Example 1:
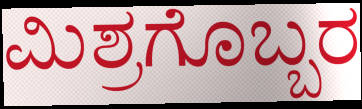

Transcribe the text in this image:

ಮಿಶ್ರಗೊಬ್ಬರ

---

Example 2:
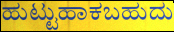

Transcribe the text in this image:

ಹುಟ್ಟುಹಾಕಬಹುದು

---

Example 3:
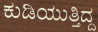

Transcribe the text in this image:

ಕುಡಿಯುತ್ತಿದ್ದ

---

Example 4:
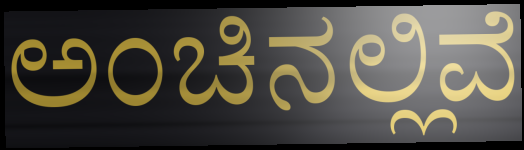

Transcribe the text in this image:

ಅಂಚಿನಲ್ಲಿವೆ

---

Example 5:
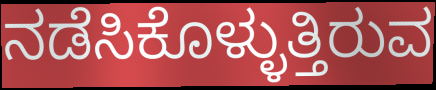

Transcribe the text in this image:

ನಡೆಸಿಕೊಳ್ಳುತ್ತಿರುವ